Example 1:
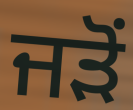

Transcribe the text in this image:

ਜਡ਼ੋਂ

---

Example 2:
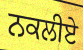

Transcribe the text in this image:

ਨਕਲੀਏ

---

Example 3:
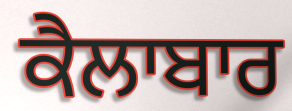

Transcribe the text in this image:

ਕੈਲਾਬਾਰ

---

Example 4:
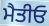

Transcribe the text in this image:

ਮੈਤੀਓ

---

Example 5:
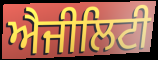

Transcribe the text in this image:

ਐਜੀਲਿਟੀ